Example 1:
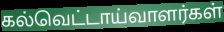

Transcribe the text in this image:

கல்வெட்டாய்வாளர்கள்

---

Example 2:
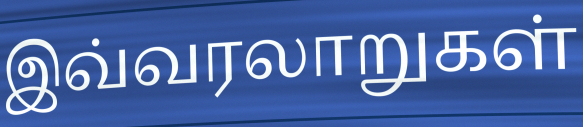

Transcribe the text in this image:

இவ்வரலாறுகள்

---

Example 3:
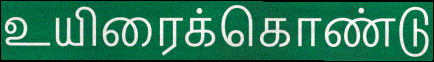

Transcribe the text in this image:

உயிரைக்கொண்டு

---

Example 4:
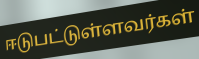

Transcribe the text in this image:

ஈடுபட்டுள்ளவர்கள்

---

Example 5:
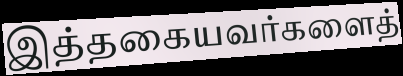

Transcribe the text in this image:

இத்தகையவர்களைத்